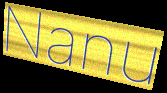
Nanu